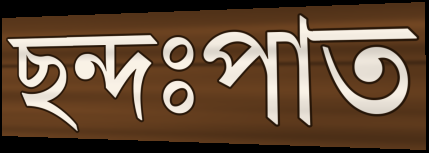
ছন্দঃপাত